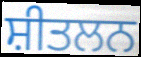
ਸ਼ੀਤਲਨ